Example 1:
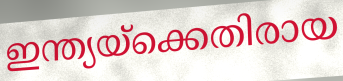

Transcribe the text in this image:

ഇന്ത്യയ്ക്കെതിരായ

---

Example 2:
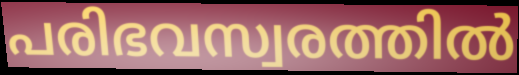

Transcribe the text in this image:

പരിഭവസ്വരത്തിൽ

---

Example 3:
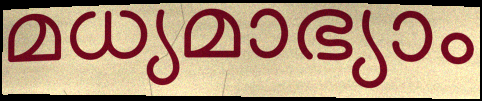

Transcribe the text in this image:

മധ്യമാഭ്യാം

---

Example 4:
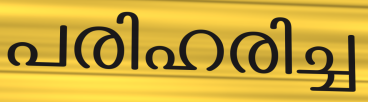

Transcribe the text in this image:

പരിഹരിച്ച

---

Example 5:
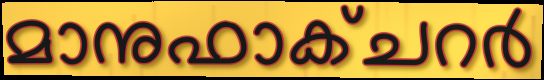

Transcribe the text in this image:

മാനുഫാക്ചറർ